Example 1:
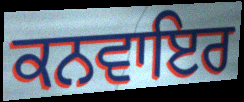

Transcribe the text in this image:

ਕਨਵਾਇਰ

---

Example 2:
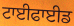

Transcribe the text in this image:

ਟਾਈਫਾਈਡ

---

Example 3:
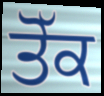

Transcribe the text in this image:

ਤੋੱਕ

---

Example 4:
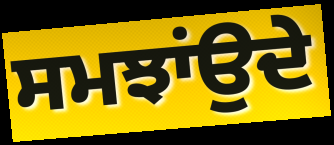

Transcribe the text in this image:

ਸਮਝਾਂਉਦੇ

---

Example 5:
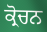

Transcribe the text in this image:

ਕ੍ਰੋਚਨ